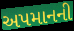
અપમાનની